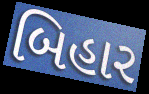
બિહાર